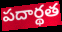
పదార్థత